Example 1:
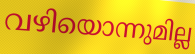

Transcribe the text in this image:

വഴിയൊന്നുമില്ല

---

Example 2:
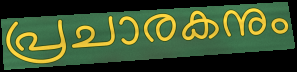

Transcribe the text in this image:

പ്രചാരകനും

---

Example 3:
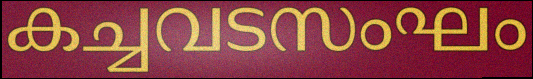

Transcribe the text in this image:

കച്ചവടസംഘം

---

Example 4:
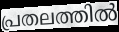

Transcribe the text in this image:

പ്രതലത്തിൽ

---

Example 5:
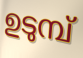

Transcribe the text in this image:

ഉടുമ്പ്